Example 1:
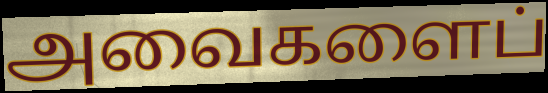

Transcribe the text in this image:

அவைகளைப்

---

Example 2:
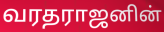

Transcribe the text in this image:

வரதராஜனின்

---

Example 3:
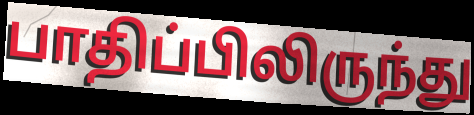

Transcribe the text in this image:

பாதிப்பிலிருந்து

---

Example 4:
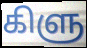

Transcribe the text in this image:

கிளு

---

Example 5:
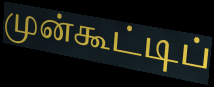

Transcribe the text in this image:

முன்கூட்டிப்